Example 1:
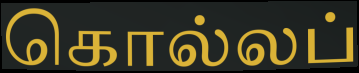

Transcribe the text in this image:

கொல்லப்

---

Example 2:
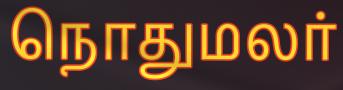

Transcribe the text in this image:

நொதுமலர்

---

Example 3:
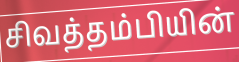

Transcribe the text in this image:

சிவத்தம்பியின்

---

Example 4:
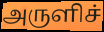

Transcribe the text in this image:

அருளிச்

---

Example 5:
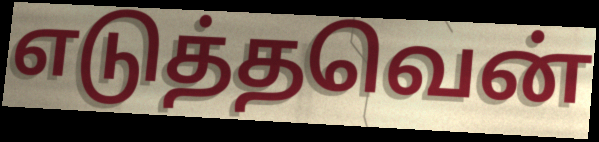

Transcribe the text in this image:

எடுத்தவென்